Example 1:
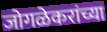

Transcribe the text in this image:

जोगळेकरांच्या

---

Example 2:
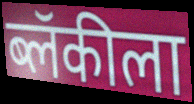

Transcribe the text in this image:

ब्लॅकीला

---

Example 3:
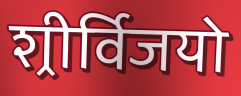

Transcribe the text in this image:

श्रीर्विजयो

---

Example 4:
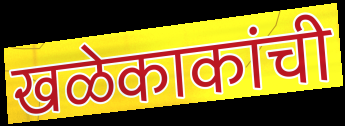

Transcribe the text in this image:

खळेकाकांची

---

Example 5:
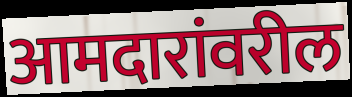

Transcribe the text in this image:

आमदारांवरील